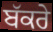
ਬੱਕਰੇ